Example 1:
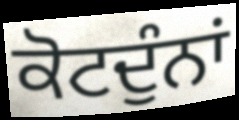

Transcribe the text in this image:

ਕੋਟਦੁੰਨਾਂ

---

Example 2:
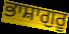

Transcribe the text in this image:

ਭਾਸ਼ਾਗੁਰੂ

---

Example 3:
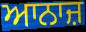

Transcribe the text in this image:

ਆਨਾਜ਼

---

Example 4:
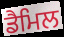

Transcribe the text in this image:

ਡੈਮਿਲ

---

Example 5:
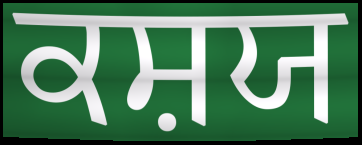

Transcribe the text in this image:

ਕਸ਼ਯ